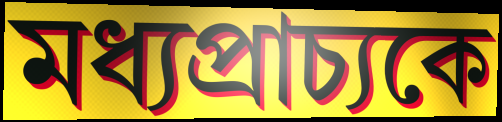
মধ্যপ্রাচ্যকে